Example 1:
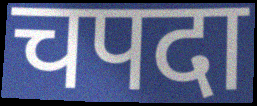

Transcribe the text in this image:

चपदा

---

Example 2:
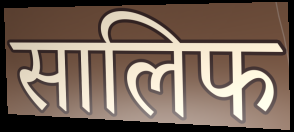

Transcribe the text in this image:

सालिफ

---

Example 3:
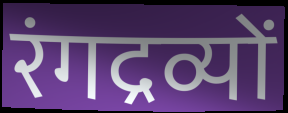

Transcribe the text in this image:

रंगद्रव्यों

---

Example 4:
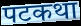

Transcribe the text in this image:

पटकथा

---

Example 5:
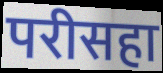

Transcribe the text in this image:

परीसहा